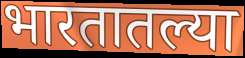
भारतातल्या